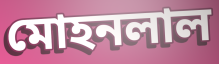
মোহনলাল